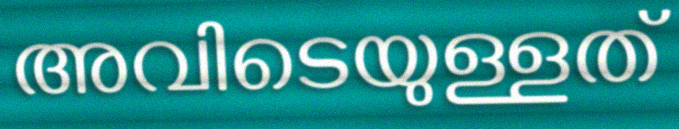
അവിടെയുള്ളത്